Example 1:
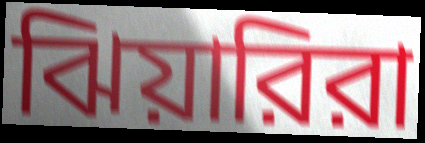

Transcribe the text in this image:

ঝিয়ারিরা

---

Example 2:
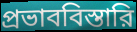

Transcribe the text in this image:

প্রভাববিস্তারি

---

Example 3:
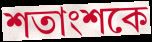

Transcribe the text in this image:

শতাংশকে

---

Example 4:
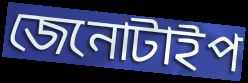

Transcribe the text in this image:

জেনোটাইপ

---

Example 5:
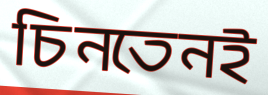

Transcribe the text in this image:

চিনতেনই